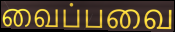
வைப்பவை